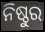
ନିଷ୍ଠୁର